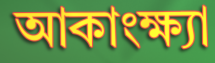
আকাংক্ষ্যা